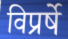
विप्रर्षे